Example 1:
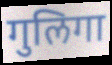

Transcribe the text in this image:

गुलिगा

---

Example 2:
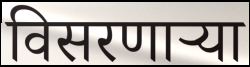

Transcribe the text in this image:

विसरणाऱ्या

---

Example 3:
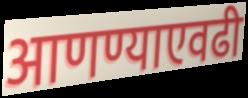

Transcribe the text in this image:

आणण्याएवढी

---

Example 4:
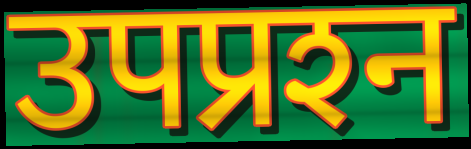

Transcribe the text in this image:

उपप्रश्‍न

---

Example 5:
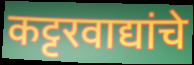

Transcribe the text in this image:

कट्टरवाद्यांचे